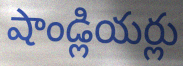
షాండ్లియర్లు